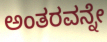
ಅಂತರವನ್ನೇ